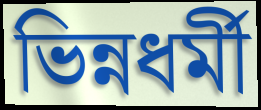
ভিন্নধৰ্মী